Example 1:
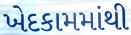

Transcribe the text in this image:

ખેદકામમાંથી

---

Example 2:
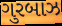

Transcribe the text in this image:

ગુરબાઝ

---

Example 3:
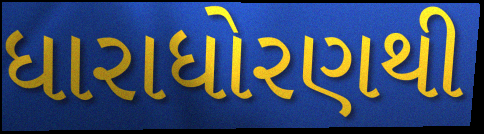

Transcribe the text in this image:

ધારાધોરણથી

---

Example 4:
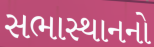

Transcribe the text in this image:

સભાસ્થાનનો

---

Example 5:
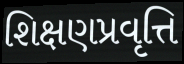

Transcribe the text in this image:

શિક્ષણપ્રવૃત્તિ